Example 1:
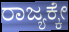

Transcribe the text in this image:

ರಾಜ್ಯಕ್ಕೇ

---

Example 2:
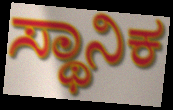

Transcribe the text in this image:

ಸ್ಥಾನಿಕ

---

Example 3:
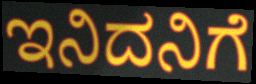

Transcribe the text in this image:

ಇನಿದನಿಗೆ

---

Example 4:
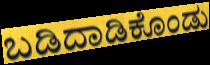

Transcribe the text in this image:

ಬಡಿದಾಡಿಕೊಂಡು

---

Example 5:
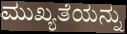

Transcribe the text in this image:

ಮುಖ್ಯತೆಯನ್ನು